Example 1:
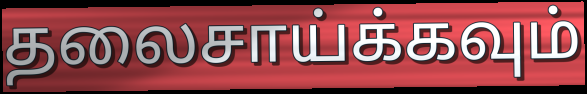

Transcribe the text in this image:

தலைசாய்க்கவும்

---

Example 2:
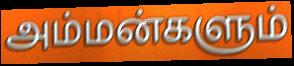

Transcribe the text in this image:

அம்மன்களும்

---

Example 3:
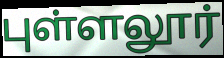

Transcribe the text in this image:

புள்ளலூர்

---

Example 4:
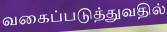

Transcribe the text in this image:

வகைப்படுத்துவதில்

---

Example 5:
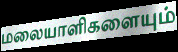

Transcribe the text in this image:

மலையாளிகளையும்